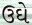
ઉઘે